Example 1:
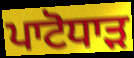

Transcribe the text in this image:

ਪਾਟੋਧਾੜ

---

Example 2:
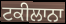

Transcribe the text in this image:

ਟਕੀਲਾਨਾ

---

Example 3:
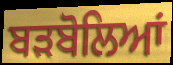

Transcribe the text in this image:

ਬੜਬੋਲਿਆਂ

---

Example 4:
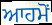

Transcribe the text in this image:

ਆਹਮੋਂ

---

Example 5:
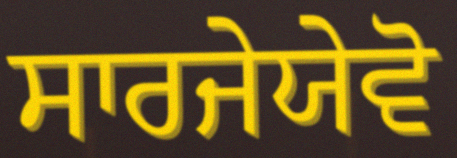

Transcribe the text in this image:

ਸਾਰਜੇਯੇਵੋ